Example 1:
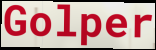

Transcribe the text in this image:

Golper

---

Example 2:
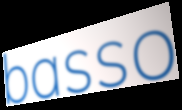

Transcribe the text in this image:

basso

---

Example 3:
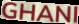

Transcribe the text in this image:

GHANI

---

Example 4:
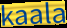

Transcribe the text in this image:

kaala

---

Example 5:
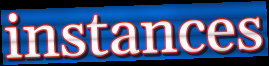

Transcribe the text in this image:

instances